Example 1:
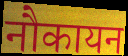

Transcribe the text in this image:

नौकायन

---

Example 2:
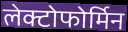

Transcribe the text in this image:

लेक्टोफोर्मिन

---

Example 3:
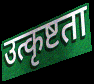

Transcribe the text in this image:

उत्कृष्टता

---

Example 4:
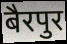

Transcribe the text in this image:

बैरपुर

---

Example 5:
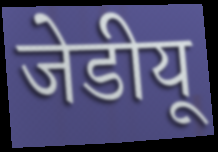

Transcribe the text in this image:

जेडीयू